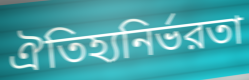
ঐতিহ্যনির্ভরতা